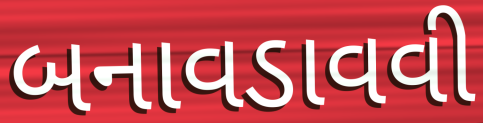
બનાવડાવવી